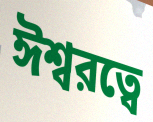
ঈশ্বরত্বে